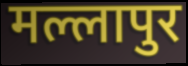
मल्लापुर